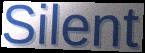
Silent